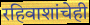
रहिवाशांचेही